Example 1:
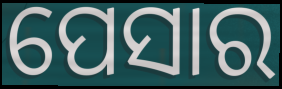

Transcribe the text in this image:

ପେସାର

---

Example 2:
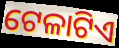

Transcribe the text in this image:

ଟେଳାଟିଏ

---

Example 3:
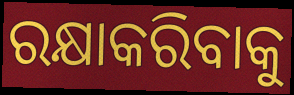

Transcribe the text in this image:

ରକ୍ଷାକରିବାକୁ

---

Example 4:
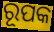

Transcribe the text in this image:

ରୂପକ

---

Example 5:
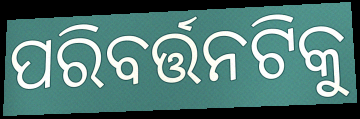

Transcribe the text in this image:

ପରିବର୍ତ୍ତନଟିକୁ